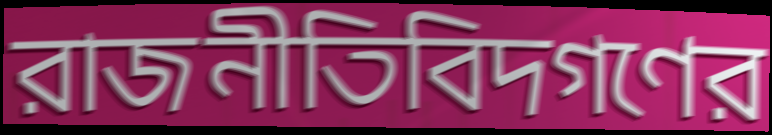
রাজনীতিবিদগণের